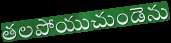
తలపోయుచుండెను